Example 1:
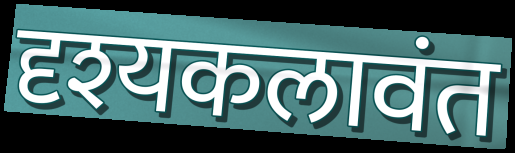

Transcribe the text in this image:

दृश्यकलावंत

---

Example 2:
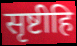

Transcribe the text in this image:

सृष्टीहि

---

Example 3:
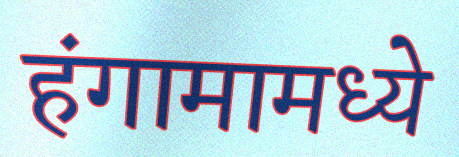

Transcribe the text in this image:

हंगामामध्ये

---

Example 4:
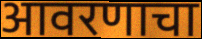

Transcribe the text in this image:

आवरणाचा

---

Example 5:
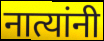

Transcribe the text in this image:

नात्यांनी